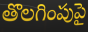
తొలగింపుపై